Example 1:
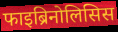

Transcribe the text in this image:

फाइब्रिनोलिसिस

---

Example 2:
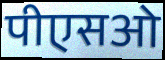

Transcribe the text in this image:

पीएसओ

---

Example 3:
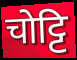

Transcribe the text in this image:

चोट्टि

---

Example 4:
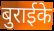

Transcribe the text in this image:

बुराईके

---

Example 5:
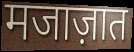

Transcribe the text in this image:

मजाज़ात